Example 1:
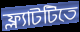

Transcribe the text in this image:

ফ্ল্যাটটিতে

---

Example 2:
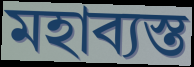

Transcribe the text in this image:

মহাব্যস্ত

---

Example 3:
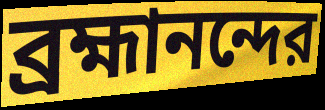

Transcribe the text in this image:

ব্রহ্মানন্দের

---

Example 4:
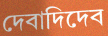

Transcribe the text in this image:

দেবাদিদেব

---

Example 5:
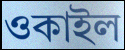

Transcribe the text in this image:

ওকাইল